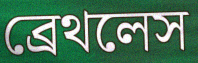
ব্রেথলেস